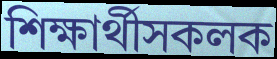
শিক্ষাৰ্থীসকলক